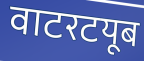
वाटरटयूब